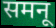
समनू